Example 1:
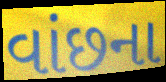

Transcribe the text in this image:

વાંછના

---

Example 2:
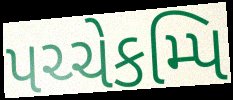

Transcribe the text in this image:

પચ્ચેકમ્પિ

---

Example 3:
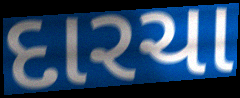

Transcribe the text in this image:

દારચા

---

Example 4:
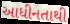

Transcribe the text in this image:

આધીનતાથી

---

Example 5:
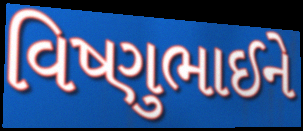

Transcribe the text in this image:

વિષ્ણુભાઈને